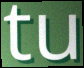
tu